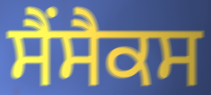
ਸੈਂਸੈਕਸ